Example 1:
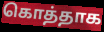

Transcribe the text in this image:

கொத்தாக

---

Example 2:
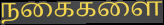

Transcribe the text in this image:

நகைகளை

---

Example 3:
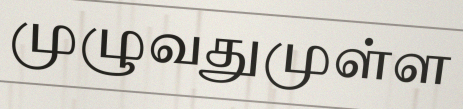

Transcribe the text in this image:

முழுவதுமுள்ள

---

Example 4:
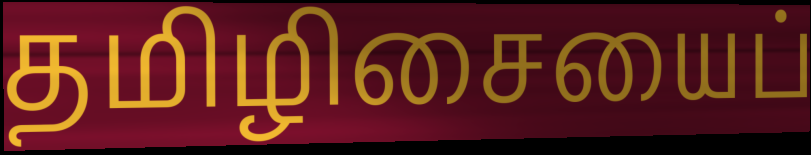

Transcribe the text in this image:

தமிழிசையைப்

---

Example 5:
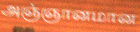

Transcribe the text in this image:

அஞ்ஞானமான